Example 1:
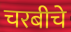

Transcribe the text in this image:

चरबीचे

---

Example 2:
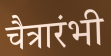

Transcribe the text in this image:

चैत्रारंभी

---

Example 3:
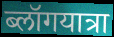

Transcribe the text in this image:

ब्लॉगयात्रा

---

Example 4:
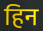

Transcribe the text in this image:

हिन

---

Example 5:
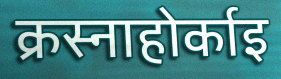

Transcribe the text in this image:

क्रस्नाहोर्काइ